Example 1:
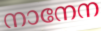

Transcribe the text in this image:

നാനേന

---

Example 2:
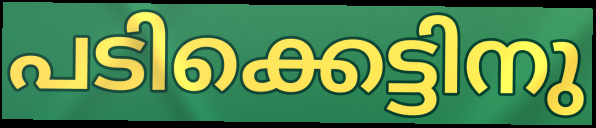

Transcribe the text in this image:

പടിക്കെട്ടിനു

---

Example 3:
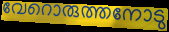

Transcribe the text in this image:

വേറൊരുത്തനോടു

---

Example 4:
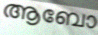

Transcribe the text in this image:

ആബോ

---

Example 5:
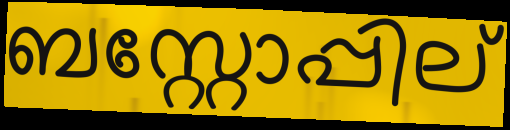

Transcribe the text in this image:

ബസ്റ്റോപ്പില്